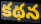
కథన